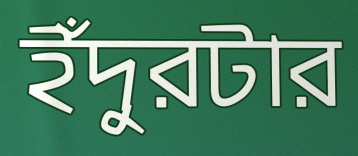
ইঁদুরটার